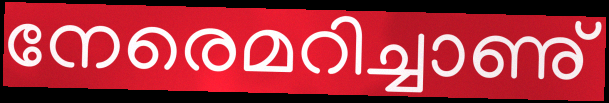
നേരെമറിച്ചാണു്